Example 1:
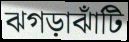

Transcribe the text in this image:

ঝগড়াঝাঁটি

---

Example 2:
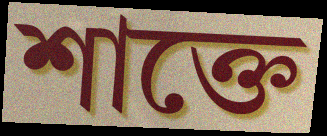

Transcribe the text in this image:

শাক্তে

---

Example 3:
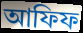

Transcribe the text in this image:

আফিফ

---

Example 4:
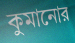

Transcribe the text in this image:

কুমানোর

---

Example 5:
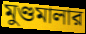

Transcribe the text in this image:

মুণ্ডমালার